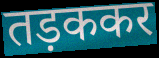
तड़ककर